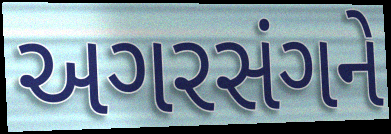
અગરસંગને